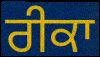
ਰੀਕਾ